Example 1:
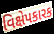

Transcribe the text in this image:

વિક્ષેપકારક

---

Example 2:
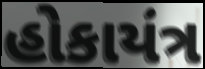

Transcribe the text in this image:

હોકાયંત્ર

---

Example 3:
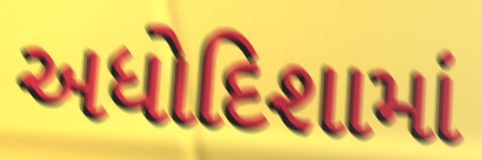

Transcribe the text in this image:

અધોદિશામાં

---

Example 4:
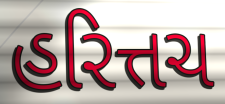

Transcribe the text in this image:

હરિત્તચ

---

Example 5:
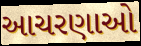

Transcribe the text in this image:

આચરણાઓ